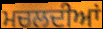
ਮਚਲਦੀਆਂ